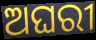
ଅଘରୀ